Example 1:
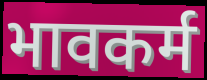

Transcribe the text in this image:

भावकर्म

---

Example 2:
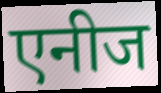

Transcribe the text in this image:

एनीज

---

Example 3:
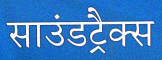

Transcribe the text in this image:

साउंडट्रैक्स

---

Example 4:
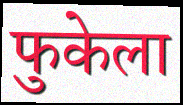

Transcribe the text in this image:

फुकेला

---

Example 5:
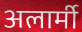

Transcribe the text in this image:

अलार्मी